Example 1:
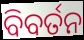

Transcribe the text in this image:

ବିବର୍ତନ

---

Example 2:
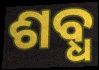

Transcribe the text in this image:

ଶବ୍ଧ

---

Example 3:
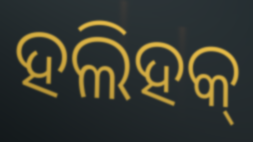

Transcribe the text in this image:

ହଲିହକ୍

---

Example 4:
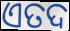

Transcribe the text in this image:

ଏତଦ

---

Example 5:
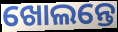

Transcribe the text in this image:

ଖୋଲନ୍ତେ